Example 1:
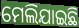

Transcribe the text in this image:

ମେଲିଯାଇଛି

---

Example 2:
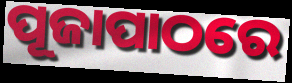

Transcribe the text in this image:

ପୂଜାପାଠରେ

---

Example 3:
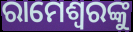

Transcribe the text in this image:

ରାମେଶ୍ୱରଙ୍କୁ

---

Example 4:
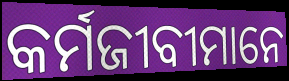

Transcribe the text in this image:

କର୍ମଜୀବୀମାନେ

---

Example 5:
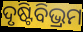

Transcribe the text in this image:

ଦୃଷ୍ଟିବିଭ୍ରମ